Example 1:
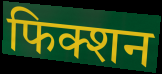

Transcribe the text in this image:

फिक्शन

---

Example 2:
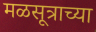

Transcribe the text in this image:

मळसूत्राच्या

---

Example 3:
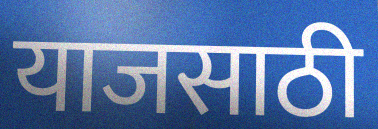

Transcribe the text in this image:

याजसाठी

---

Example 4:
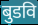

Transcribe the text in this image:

बुडवि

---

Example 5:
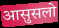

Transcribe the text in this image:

आसुसलो